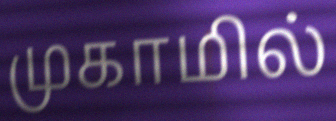
முகாமில்